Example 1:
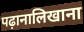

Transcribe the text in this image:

पढ़ानालिखाना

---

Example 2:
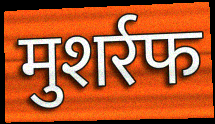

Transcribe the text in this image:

मुशर्रफ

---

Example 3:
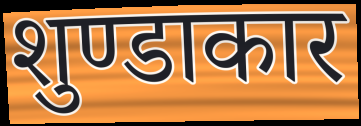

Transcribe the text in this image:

शुण्डाकार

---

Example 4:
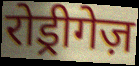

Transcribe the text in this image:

रोड्रीगेज़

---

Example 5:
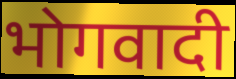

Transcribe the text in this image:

भोगवादी